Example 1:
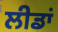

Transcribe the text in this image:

ਲੀਡਾਂ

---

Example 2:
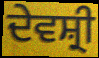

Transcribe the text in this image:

ਦੇਵਸ਼੍ਰੀ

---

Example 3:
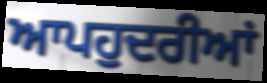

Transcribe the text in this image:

ਆਪਹੁਦਰੀਆਂ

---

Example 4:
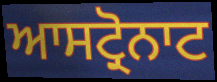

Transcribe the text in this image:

ਆਸਟ੍ਰੋਨਾਟ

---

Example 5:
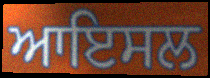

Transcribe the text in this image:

ਆਇਸਲ